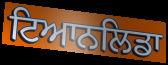
ਟਿਆਨਲਿਡਾ